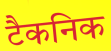
टैकनिक